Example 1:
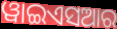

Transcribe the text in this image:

ୱାଇଏସଆର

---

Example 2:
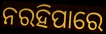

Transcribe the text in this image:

ନରହିପାରେ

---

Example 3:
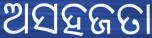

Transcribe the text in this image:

ଅସହଜତା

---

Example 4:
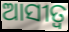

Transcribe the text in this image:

ଆସୀତ୍ବ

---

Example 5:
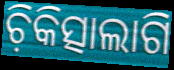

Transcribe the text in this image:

ଚ଼ିକିତ୍ସାଲାଗି